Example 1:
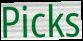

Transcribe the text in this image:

Picks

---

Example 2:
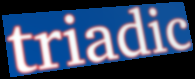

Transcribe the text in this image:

triadic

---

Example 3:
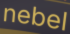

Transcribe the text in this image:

nebel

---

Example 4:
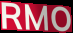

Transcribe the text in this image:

RMO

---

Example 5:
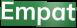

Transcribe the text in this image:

Empat